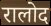
रालोद